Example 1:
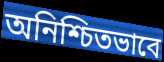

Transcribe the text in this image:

অনিশ্চিতভাবে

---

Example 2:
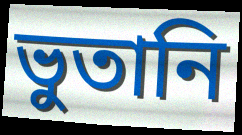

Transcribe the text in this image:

ভুতানি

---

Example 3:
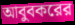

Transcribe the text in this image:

আবুবকরের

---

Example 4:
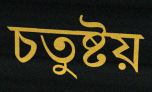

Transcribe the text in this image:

চতুষ্টয়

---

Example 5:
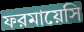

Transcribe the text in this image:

ফরমায়েসি